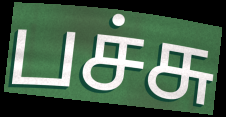
பச்சு